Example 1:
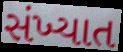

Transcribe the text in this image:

સંખ્યાત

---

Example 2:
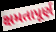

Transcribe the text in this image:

ક્ષમતાપૂર્ણ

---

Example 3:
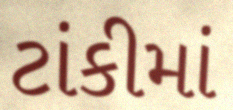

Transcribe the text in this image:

ટાંકીમાં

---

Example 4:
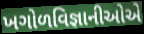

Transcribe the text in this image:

ખગોળવિજ્ઞાનીઓએ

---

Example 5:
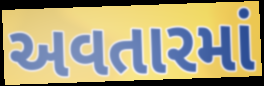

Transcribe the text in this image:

અવતારમાં